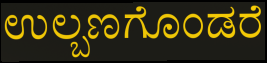
ಉಲ್ಬಣಗೊಂಡರೆ